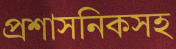
প্রশাসনিকসহ